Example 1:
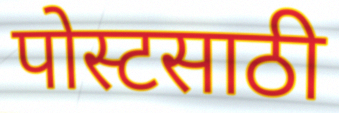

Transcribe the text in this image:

पोस्टसाठी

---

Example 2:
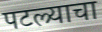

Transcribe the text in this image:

पटल्याचा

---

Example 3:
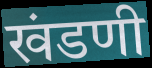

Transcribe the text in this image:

खंडणी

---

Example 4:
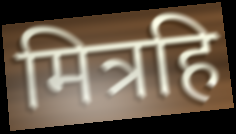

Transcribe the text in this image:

मित्रहि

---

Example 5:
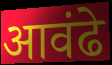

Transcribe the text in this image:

आवंढे